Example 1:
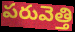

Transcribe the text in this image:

పరువెత్తి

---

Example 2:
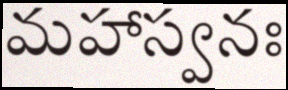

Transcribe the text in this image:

మహాస్వనః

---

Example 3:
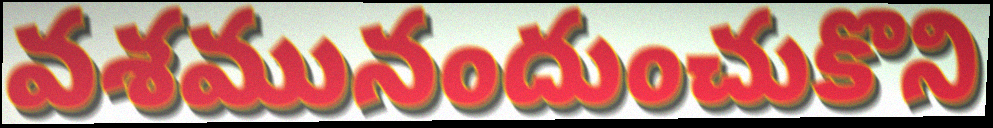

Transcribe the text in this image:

వశమునందుంచుకొని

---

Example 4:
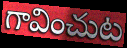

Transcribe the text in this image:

గావించుట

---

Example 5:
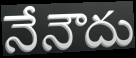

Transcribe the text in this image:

నేనౌదు